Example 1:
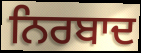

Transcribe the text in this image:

ਨਿਰਬਾਦ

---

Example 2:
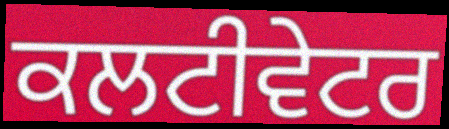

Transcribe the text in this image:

ਕਲਟੀਵੇਟਰ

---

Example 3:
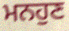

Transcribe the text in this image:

ਮਨਹੁਣ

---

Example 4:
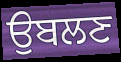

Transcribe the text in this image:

ਉਬਲਣ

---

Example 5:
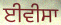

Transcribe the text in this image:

ਈਵੀਸਾ